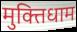
मुक्तिधाम